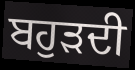
ਬਹੁੜਦੀ